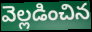
వెల్లడించిన